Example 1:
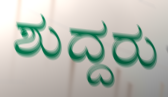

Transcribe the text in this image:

ಶುದ್ದರು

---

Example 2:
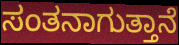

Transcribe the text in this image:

ಸಂತನಾಗುತ್ತಾನೆ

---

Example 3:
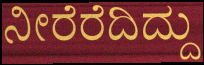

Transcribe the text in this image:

ನೀರೆರೆದಿದ್ದು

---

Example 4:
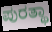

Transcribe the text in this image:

ಪುರತ್ಥಾ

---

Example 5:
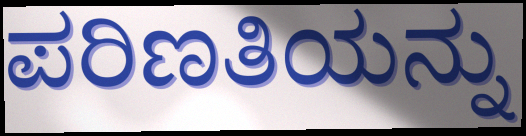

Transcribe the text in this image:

ಪರಿಣತಿಯನ್ನು